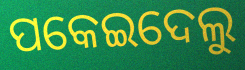
ପକେଇଦେଲୁ